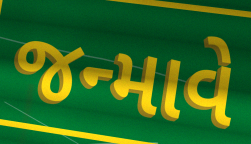
જન્માવે